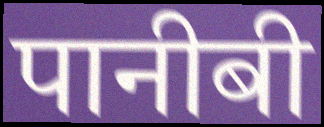
पानीबी